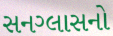
સનગ્લાસનો